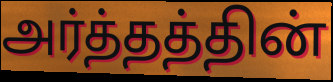
அர்த்தத்தின்